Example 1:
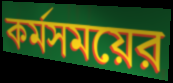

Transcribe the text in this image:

কর্মসময়ের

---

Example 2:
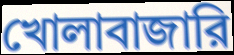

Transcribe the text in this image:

খোলাবাজারি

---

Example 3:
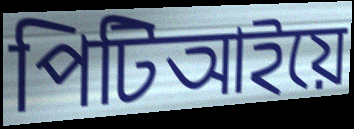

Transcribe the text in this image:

পিটিআইয়ে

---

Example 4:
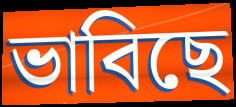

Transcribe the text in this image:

ভাবিছে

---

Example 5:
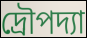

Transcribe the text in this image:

দ্রৌপদ্যা